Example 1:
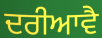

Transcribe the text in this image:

ਦਰੀਆਵੈ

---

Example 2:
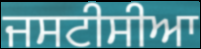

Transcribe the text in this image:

ਜਸਟੀਸੀਆ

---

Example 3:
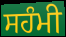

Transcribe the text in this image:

ਸਹੰਮੀ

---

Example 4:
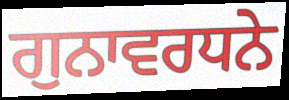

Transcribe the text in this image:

ਗੁਨਾਵਰਧਨੇ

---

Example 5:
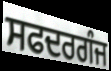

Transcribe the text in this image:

ਸਫਦਰਗੰਜ